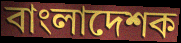
বাংলাদেশক